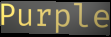
Purple